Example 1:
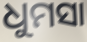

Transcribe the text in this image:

ଧୁମସା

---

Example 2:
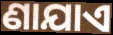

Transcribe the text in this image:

ଣାଯାଏ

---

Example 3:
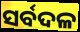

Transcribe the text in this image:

ସର୍ବଦଳ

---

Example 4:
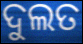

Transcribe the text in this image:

ଦୁଲତ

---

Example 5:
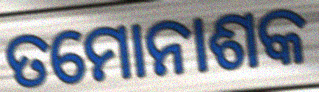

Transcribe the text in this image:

ତମୋନାଶକ